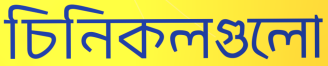
চিনিকলগুলো